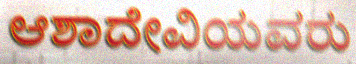
ಆಶಾದೇವಿಯವರು